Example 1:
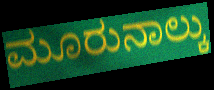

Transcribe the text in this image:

ಮೂರುನಾಲ್ಕು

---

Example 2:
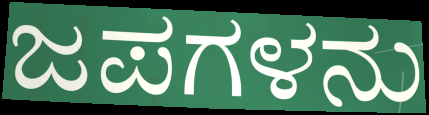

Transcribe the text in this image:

ಜಪಗಳನು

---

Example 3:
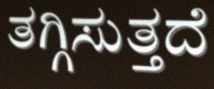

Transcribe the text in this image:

ತಗ್ಗಿಸುತ್ತದೆ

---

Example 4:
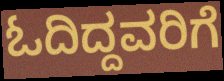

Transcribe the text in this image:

ಓದಿದ್ದವರಿಗೆ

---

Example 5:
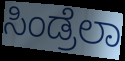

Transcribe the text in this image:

ಸಿಂಡ್ರೆಲಾ